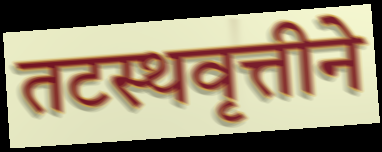
तटस्थवृत्तीने